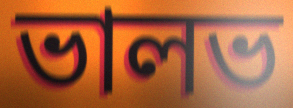
ভালভ